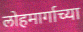
लोहमार्गाच्या